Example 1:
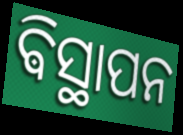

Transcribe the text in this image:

ଵିସ୍ଥାପନ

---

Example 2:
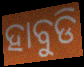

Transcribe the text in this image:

ହାବୁଡି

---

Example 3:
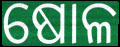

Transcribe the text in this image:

ଷୋଳ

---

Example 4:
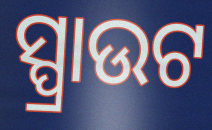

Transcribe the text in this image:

ସ୍ପ୍ରାଉଟ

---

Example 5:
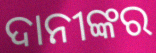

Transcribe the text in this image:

ଦାନୀଙ୍କର